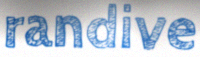
randive